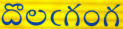
దొలఁగంగ